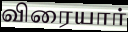
விரையார்